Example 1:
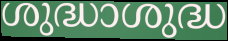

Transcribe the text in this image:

ശുദ്ധാശുദ്ധ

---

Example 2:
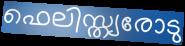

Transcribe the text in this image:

ഫെലിസ്ത്യരോടു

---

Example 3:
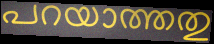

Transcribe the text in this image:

പറയാത്തതു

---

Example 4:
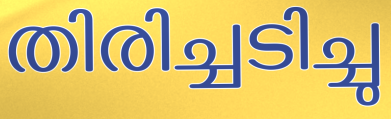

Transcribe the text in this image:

തിരിച്ചടിച്ചു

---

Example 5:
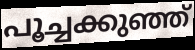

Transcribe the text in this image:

പൂച്ചക്കുഞ്ഞ്